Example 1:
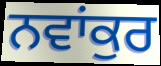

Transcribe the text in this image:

ਨਵਾਂਕੁਰ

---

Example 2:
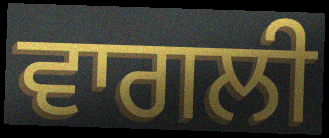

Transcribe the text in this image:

ਵਾਗਲੀ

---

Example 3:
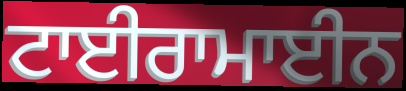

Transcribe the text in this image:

ਟਾਈਰਾਮਾਈਨ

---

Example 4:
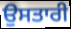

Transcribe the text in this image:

ਉਸਤਾਰੀ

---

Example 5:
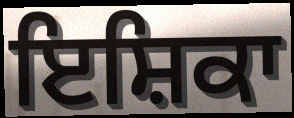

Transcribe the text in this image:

ਇਸ਼ਿਕਾ